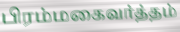
பிரம்மகைவர்த்தம்